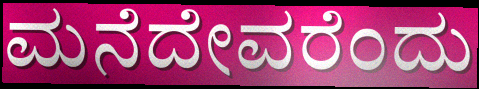
ಮನೆದೇವರೆಂದು